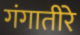
गंगातीरे